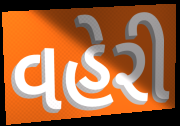
વહેરી